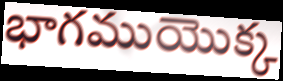
భాగముయొక్క